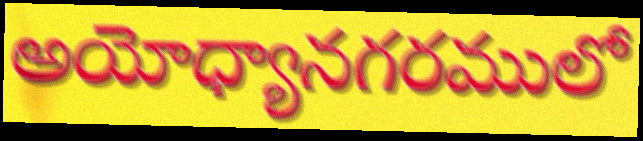
అయోధ్యానగరములో